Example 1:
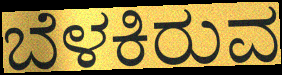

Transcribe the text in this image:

ಬೆಳಕಿರುವ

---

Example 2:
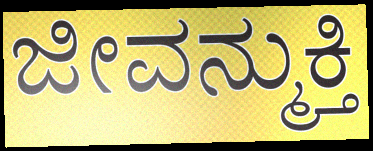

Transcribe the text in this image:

ಜೀವನ್ಮುಕ್ತಿ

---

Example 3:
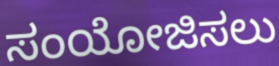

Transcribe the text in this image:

ಸಂಯೋಜಿಸಲು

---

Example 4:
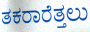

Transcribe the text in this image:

ತಕರಾರೆತ್ತಲು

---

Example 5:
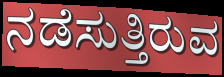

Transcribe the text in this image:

ನಡೆಸುತ್ತಿರುವ